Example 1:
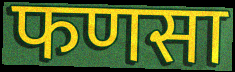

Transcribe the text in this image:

फणसा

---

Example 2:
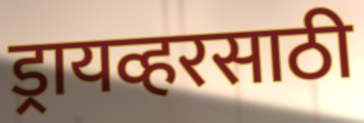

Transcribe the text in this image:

ड्रायव्हरसाठी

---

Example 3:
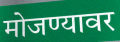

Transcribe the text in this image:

मोजण्यावर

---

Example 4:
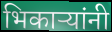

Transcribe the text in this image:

भिकाऱ्यांनी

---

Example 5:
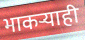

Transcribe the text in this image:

भाकऱ्याही